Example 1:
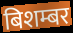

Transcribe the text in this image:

बिशम्बर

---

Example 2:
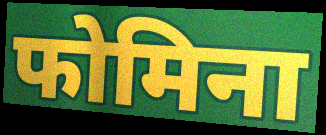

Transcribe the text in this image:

फोमिना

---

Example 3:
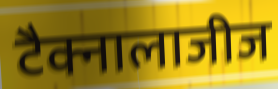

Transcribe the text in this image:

टैक्नालाजीज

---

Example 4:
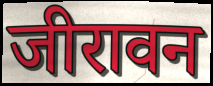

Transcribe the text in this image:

जीरावन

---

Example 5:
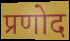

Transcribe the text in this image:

प्रणोद